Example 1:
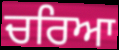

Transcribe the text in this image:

ਚਰਿਆ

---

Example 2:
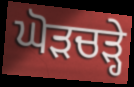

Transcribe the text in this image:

ਘੋੜਚੜ੍ਹੇ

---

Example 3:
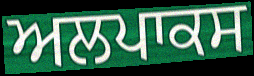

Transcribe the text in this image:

ਅਲਪਾਕਸ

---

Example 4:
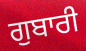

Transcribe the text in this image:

ਗੁਬਾਰੀ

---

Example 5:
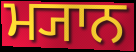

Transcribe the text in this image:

ਮ੍ਯਾਨ